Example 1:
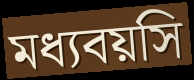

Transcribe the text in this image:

মধ্যবয়সি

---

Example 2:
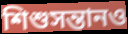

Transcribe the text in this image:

শিশুসন্তানও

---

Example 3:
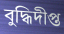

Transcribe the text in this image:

বুদ্ধিদীপ্ত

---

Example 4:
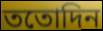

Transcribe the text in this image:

ততোদিন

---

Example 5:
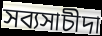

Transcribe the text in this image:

সব্যসাচীদা